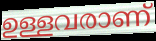
ഉള്ളവരാണ്